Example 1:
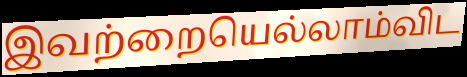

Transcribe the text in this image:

இவற்றையெல்லாம்விட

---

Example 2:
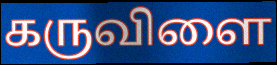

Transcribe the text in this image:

கருவிளை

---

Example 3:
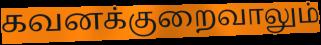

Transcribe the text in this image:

கவனக்குறைவாலும்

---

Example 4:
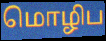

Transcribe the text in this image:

மொழிப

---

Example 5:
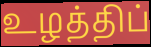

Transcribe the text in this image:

உழத்திப்